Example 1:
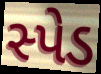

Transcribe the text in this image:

સ્પેડ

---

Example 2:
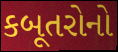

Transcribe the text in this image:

કબૂતરોનો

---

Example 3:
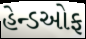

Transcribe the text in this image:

હેન્ડઓફ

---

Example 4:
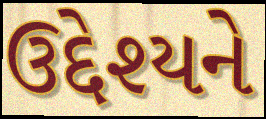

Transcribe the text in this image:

ઉદ્દેશ્યને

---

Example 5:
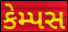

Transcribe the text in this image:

કેમ્પસ